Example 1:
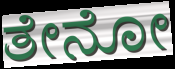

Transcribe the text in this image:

ತೇನೋ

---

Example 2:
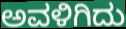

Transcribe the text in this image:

ಅವಳಿಗಿದು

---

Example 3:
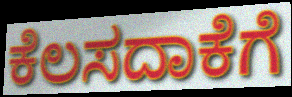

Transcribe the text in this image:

ಕೆಲಸದಾಕೆಗೆ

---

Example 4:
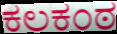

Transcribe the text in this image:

ಕಲಕಂಠ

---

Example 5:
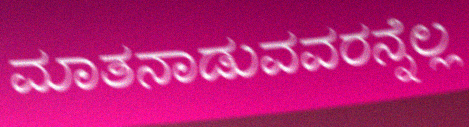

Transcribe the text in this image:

ಮಾತನಾಡುವವರನ್ನೆಲ್ಲ